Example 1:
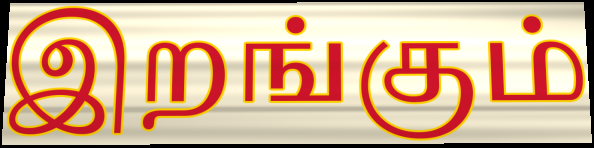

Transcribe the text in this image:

இறங்கும்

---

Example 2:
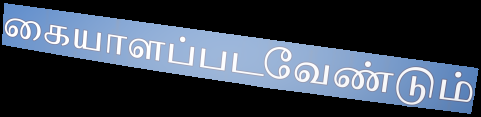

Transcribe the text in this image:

கையாளப்படவேண்டும்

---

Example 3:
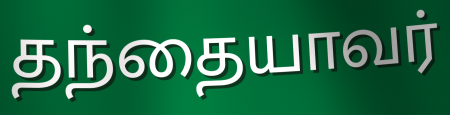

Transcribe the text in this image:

தந்தையாவர்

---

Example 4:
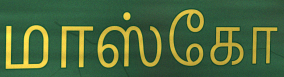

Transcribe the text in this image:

மாஸ்கோ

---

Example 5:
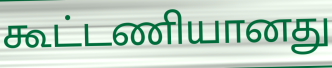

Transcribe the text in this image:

கூட்டணியானது